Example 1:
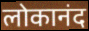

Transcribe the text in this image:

लोकानंद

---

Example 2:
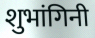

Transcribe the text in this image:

शुभांगिनी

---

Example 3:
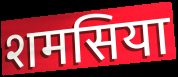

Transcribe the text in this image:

शमसिया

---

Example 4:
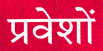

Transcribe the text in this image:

प्रवेशों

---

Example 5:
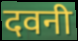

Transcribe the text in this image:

दवनी